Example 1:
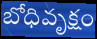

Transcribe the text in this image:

బోధివృక్షం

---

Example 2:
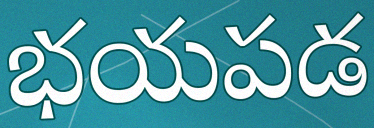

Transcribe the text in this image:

భయపడ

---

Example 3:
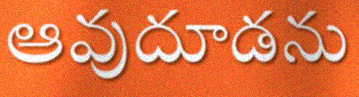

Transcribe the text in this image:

ఆవుదూడను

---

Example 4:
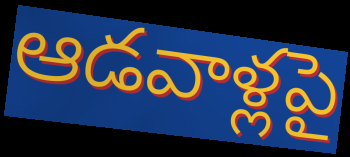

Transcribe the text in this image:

ఆడవాళ్లపై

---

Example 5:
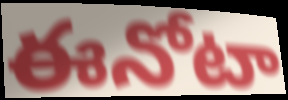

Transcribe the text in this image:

ఈనోటా